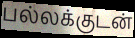
பல்லக்குடன்